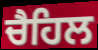
ਚੈਹਿਲ